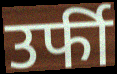
उर्फी